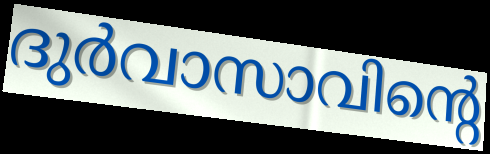
ദുർവാസാവിന്റെ